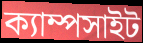
ক্যাম্পসাইট